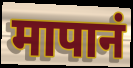
मापानं